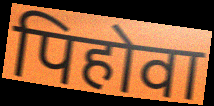
पिहोवा